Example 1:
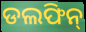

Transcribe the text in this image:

ଡଲଫିନ୍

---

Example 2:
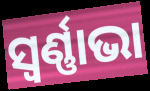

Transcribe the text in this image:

ସ୍ୱର୍ଣ୍ଣାଭା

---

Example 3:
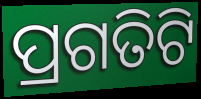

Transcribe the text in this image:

ପ୍ରଗତିଟି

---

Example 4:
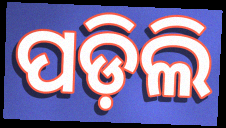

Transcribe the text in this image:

ପଡ଼ିଲି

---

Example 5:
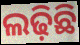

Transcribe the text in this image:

ଲଢ଼ିଛି